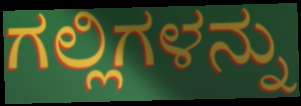
ಗಲ್ಲಿಗಳನ್ನು